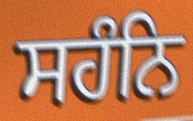
ਸਹੰਨਿ